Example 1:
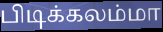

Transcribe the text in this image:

பிடிக்கலம்மா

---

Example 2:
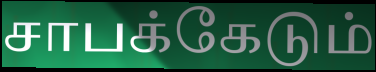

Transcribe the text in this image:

சாபக்கேடும்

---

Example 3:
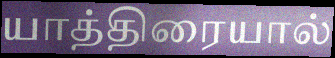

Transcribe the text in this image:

யாத்திரையால்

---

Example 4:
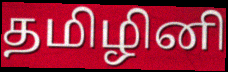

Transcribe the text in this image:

தமிழினி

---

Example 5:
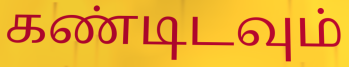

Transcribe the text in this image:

கண்டிடவும்